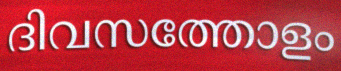
ദിവസത്തോളം